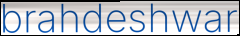
brahdeshwar